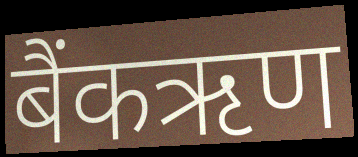
बैंकऋण